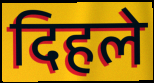
दिहले